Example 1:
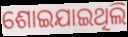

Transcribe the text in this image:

ଶୋଇଯାଇଥିଲି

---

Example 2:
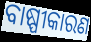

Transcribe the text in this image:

ବାଷ୍ପୀକାରଣ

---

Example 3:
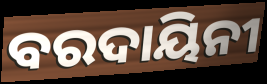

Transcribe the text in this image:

ବରଦାୟିନୀ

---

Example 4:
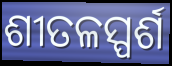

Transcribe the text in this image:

ଶୀତଳସ୍ପର୍ଶ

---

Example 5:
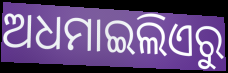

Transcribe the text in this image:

ଅଧମାଇଲିଏରୁ